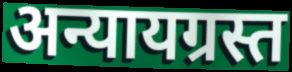
अन्यायग्रस्त